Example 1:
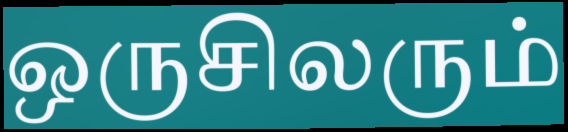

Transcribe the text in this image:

ஒருசிலரும்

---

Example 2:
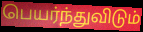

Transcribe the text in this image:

பெயர்ந்துவிடும்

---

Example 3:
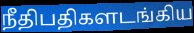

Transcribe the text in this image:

நீதிபதிகளடங்கிய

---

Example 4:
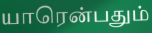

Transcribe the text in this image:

யாரென்பதும்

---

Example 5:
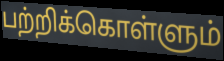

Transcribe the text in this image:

பற்றிக்கொள்ளும்